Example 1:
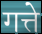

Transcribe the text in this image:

गत्ते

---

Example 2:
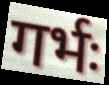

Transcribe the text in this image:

गर्भः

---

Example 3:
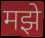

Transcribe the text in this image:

मझे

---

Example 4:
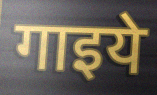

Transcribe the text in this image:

गाइये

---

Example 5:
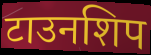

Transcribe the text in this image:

टाउनशिप